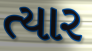
ત્‍યાર